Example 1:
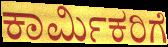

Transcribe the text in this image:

ಕಾರ್ಮಿಕರಿಗೆ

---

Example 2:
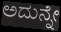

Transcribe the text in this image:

ಅದುನ್ನೇ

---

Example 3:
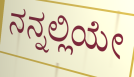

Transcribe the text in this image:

ನನ್ನಲ್ಲಿಯೇ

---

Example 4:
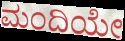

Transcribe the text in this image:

ಮಂದಿಯೇ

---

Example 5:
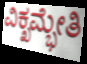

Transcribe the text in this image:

ವಿಕ್ಖಮ್ಭೇತಿ